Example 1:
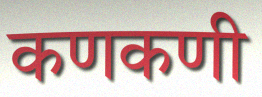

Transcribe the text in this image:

कणकणी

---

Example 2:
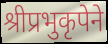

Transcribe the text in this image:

श्रीप्रभुकृपेने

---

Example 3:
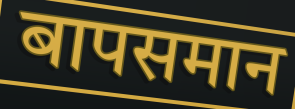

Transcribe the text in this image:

बापसमान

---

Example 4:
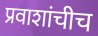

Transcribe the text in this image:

प्रवाशांचीच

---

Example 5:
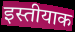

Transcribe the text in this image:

इस्तीयाक